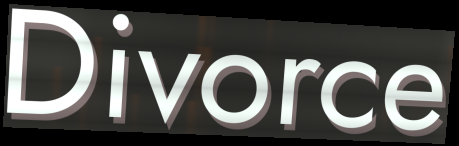
Divorce